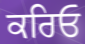
ਕਰਿਓ